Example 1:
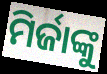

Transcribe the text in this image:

ମିର୍ଜାଙ୍କୁ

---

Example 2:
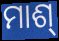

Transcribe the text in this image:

ମାଶ୍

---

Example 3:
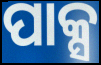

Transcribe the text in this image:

ପାକ୍ସ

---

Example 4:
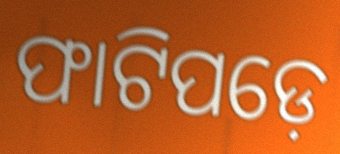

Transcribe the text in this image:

ଫାଟିପଡ଼େ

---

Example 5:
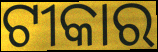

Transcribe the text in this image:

ଟୀକାର